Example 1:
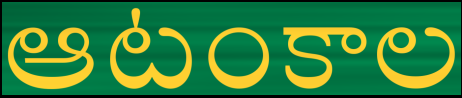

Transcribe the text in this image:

ఆటంకాల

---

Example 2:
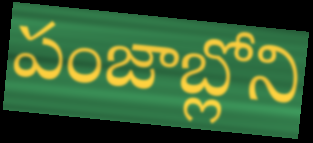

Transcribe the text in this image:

పంజాబ్లోని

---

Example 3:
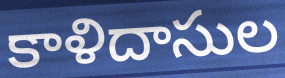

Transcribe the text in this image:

కాళిదాసుల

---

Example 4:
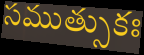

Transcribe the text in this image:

సముత్సుకః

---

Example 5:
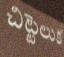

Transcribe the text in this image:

చిట్టెలుక